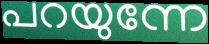
പറയുന്നേ